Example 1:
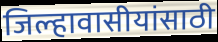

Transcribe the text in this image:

जिल्हावासीयांसाठी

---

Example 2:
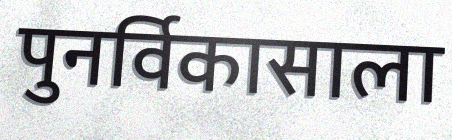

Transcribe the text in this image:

पुनर्विकासाला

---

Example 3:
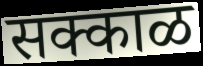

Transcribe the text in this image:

सक्काळ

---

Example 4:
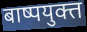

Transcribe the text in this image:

बाष्पयुक्त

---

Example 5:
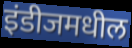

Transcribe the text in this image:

इंडीजमधील